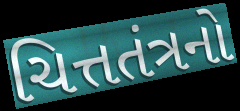
ચિત્તતંત્રનો